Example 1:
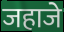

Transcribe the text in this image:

जहाजे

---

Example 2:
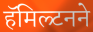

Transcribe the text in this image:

हॅमिल्टनने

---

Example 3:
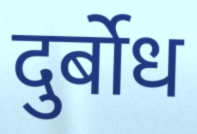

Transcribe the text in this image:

दुर्बोध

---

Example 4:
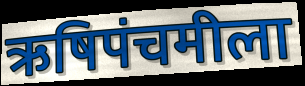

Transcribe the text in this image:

ऋषिपंचमीला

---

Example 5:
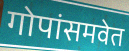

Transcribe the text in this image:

गोपांसमवेत